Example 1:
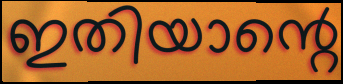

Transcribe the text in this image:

ഇതിയാന്റെ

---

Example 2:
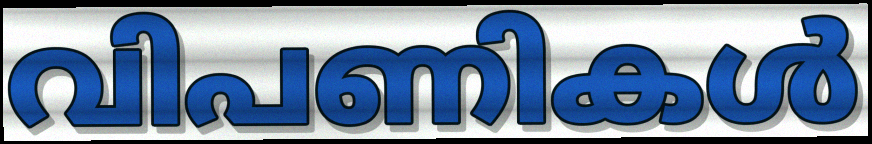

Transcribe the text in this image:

വിപണികൾ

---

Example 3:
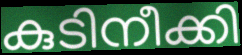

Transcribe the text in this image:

കുടിനീക്കി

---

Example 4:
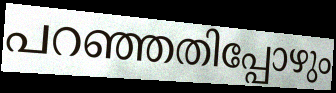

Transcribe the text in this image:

പറഞ്ഞതിപ്പോഴും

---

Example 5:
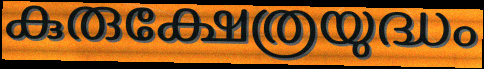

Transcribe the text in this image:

കുരുക്ഷേത്രയുദ്ധം